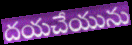
దయచేయును